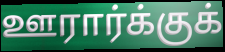
ஊரார்க்குக்